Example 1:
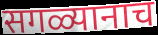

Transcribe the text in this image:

सगळ्यानाच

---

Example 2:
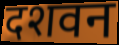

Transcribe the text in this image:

दशवन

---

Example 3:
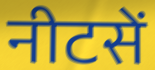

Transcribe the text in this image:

नीटसें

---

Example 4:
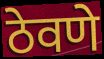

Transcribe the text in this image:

ठेवणे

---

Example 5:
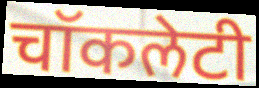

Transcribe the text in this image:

चॉकलेटी